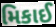
મિકાઈ